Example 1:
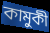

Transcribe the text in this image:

কামুকী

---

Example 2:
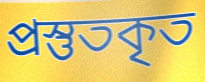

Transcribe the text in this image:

প্রস্তুতকৃত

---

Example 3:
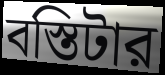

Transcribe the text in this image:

বস্তিটার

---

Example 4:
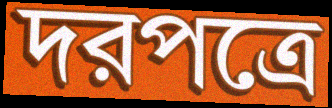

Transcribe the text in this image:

দরপত্রে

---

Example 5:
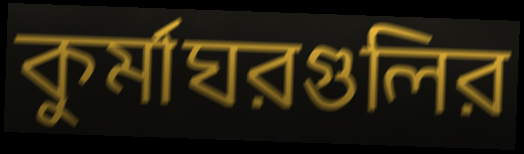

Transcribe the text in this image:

কুর্মাঘরগুলির